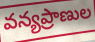
వన్యప్రాణుల